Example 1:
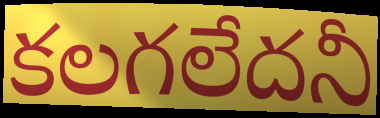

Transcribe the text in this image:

కలగలేదనీ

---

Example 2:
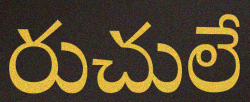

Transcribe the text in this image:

రుచులే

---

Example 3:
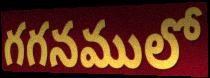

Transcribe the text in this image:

గగనములో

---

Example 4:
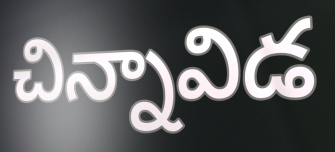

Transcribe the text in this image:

చిన్నావిడ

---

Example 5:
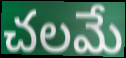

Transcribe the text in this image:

చలమే